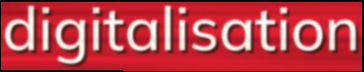
digitalisation